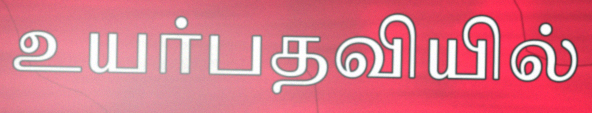
உயர்பதவியில்